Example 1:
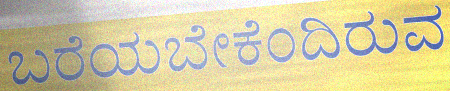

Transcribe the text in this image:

ಬರೆಯಬೇಕೆಂದಿರುವ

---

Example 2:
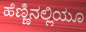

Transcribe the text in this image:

ಹೆಣ್ಣಿನಲ್ಲಿಯೂ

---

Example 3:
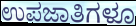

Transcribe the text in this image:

ಉಪಜಾತಿಗಳೂ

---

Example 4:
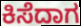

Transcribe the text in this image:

ಕಿಸೆದಾಗ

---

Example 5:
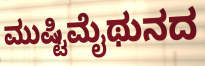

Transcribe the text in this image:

ಮುಷ್ಟಿಮೈಥುನದ